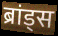
ब्रांड्स